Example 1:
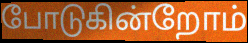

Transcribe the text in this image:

போடுகின்றோம்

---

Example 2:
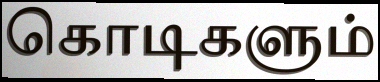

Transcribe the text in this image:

கொடிகளும்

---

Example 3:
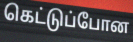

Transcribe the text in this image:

கெட்டுப்போன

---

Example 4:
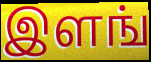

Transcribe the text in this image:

இளங்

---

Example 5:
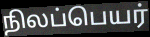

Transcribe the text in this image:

நிலப்பெயர்